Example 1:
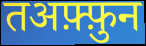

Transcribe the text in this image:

तअफ़्फ़ुन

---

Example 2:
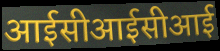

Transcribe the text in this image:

आईसीआईसीआई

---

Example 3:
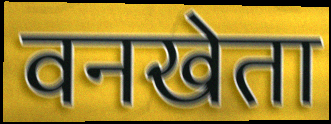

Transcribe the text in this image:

वनखेता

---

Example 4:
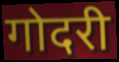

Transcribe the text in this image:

गोदरी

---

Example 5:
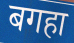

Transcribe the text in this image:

बगहा